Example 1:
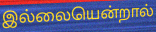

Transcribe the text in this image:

இல்லையென்றால்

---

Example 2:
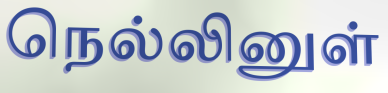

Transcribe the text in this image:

நெல்லினுள்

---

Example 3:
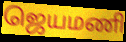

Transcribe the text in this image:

ஜெயமணி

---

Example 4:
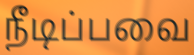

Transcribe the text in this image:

நீடிப்பவை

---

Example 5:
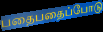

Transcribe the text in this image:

பதைபதைப்போடு